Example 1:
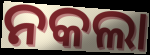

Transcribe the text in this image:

ନକଲା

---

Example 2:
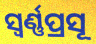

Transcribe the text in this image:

ସ୍ୱର୍ଣ୍ଣପ୍ରସୂ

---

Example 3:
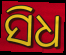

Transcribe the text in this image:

ସିଧ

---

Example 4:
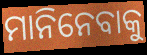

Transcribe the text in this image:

ମାନିନେବାକୁ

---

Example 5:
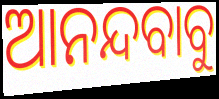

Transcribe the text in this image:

ଆନନ୍ଦବାବୁ